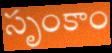
సృంకాం